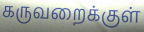
கருவறைக்குள்